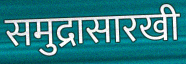
समुद्रासारखी